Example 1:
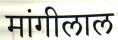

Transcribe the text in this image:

मांगीलाल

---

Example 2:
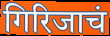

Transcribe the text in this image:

गिरिजाचं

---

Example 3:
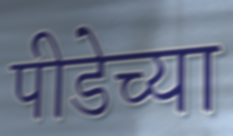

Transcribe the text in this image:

पीडेच्या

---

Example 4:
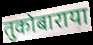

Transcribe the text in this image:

तुकोबाराया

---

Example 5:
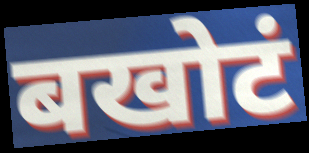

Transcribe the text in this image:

बखोटं